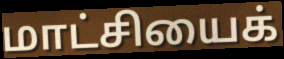
மாட்சியைக்